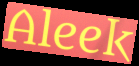
Aleek